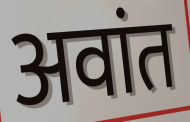
अवांत